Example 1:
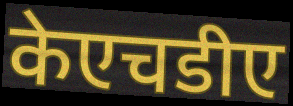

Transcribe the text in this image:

केएचडीए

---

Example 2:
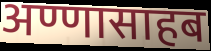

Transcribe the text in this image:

अण्णासाहब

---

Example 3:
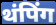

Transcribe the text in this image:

थंपिंग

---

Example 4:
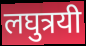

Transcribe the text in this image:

लघुत्रयी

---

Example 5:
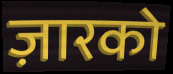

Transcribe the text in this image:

ज़ारको